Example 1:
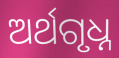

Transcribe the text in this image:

ଅର୍ଥଗୃଧ୍ନ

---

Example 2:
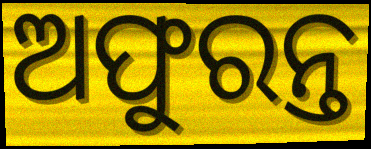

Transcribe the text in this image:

ଅଫୁରନ୍ତ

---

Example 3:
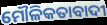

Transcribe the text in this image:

ମୌଳିକତାବାଦୀ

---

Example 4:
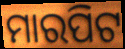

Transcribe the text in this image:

ମାରପିଟ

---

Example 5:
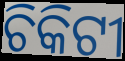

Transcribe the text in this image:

ଚିକିଟୀ